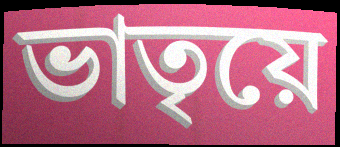
ভাতৃয়ে